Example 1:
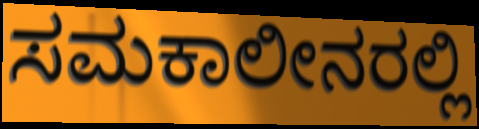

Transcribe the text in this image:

ಸಮಕಾಲೀನರಲ್ಲಿ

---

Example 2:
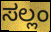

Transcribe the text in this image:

ಸಲ್ಲಂ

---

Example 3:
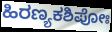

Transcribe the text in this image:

ಹಿರಣ್ಯಕಶಿಪೋಃ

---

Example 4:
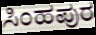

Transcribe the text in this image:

ಸಿಂಹಪುರ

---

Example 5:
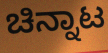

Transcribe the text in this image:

ಚಿನ್ನಾಟ